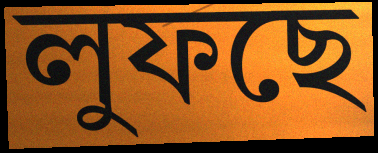
লুফছে